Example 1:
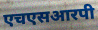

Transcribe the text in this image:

एचएसआरपी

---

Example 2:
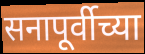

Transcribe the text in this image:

सनापूर्वीच्या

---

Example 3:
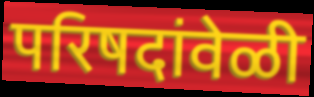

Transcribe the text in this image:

परिषदांवेळी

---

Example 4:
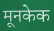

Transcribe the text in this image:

मूनकेक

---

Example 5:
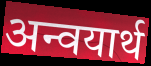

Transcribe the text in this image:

अन्वयार्थ